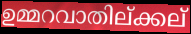
ഉമ്മറവാതില്ക്കല്